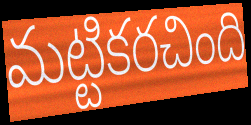
మట్టికరచింది